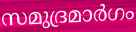
സമുദ്രമാർഗം